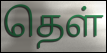
தெள்